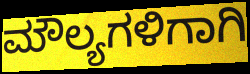
ಮೌಲ್ಯಗಳಿಗಾಗಿ